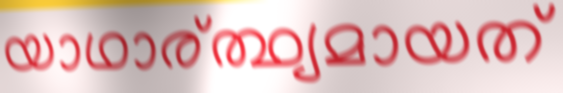
യാഥാര്ത്ഥ്യമായത്